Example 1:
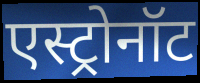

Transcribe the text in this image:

एस्ट्रोनॉट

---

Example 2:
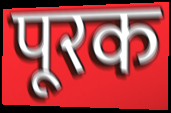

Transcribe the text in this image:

पूरक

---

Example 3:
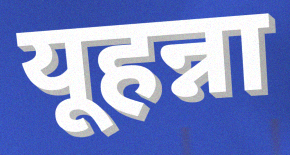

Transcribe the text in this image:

यूहन्ना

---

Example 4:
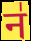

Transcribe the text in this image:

न॑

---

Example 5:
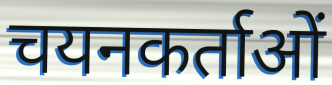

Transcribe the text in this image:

चयनकर्ताओं